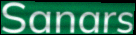
Sanars